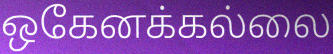
ஒகேனக்கல்லை